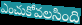
ఎంచుకోవలసింది